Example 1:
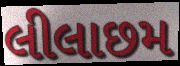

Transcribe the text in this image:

લીલાછમ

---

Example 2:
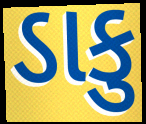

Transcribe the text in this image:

ડાકુ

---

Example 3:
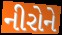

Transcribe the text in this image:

નીરોને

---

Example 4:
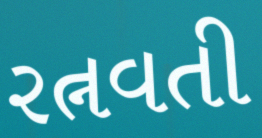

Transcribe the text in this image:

રત્નવતી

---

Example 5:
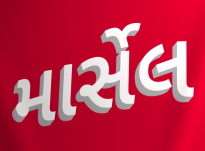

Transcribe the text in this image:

માર્સેલ